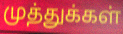
முத்துக்கள்